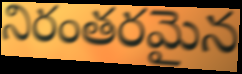
నిరంతరమైన